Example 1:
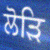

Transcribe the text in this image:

ਲੋੜਿ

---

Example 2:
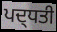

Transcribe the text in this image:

ਪਦ੍ਧਤੀ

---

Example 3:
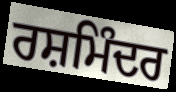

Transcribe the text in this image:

ਰਸ਼ਮਿੰਦਰ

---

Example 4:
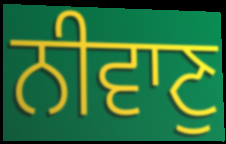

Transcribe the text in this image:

ਨੀਵਾਣੁ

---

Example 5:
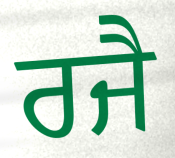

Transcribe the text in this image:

ਰਜੈ